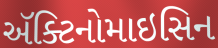
ઍક્ટિનોમાઇસિન